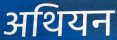
अथियन